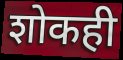
शोकही